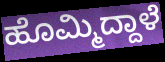
ಹೊಮ್ಮಿದ್ದಾಳೆ